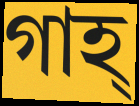
গাহ্